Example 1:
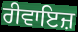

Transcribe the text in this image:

ਰੀਵਾਇਜ਼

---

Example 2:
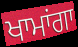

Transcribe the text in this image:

ਖਾਮਾਂਗਾ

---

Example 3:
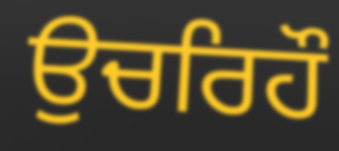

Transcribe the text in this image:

ਉਚਰਿਹੌ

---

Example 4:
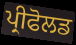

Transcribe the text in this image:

ਪ੍ਰੀਫੋਲਡ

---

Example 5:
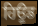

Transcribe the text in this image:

ਹਿਊਡ